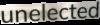
unelected